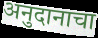
अनुदानाचा